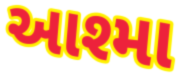
આશ્મા